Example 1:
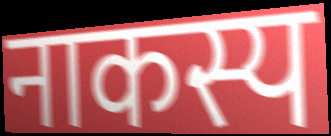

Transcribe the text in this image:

नाकस्य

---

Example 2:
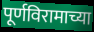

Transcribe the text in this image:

पूर्णविरामाच्या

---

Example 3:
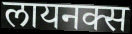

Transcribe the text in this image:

लायनक्स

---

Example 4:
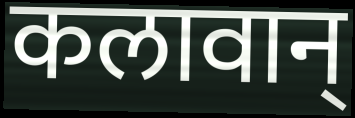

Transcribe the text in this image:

कलावान्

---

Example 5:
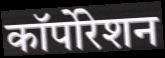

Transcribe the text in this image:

कॉर्पोरेशन